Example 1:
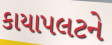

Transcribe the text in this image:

કાયાપલટને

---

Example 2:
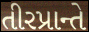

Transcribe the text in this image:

તીરપ્રાન્તે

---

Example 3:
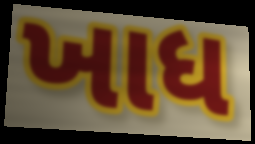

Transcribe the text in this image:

ખાધ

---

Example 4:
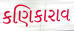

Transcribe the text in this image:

કણિકારાવ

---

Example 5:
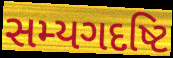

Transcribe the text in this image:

સમ્યગદષ્ટિ